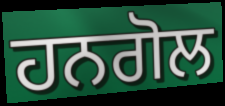
ਹਨਗੋਲ